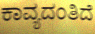
ಕಾವ್ಯದಂತಿದೆ